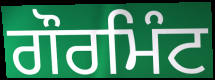
ਗੌਰਮਿੰਟ